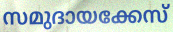
സമുദായക്കേസ്